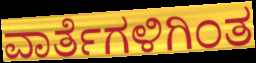
ವಾರ್ತೆಗಳಿಗಿಂತ